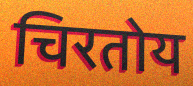
चिरतोय